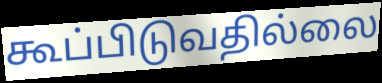
கூப்பிடுவதில்லை